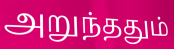
அறுந்ததும்